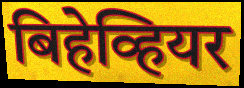
बिहेव्हियर